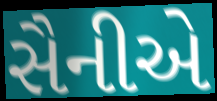
સૈનીએ